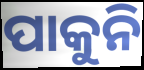
ପାକୁନି